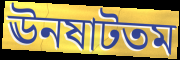
ঊনষাটতম